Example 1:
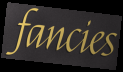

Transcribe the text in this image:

fancies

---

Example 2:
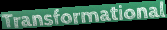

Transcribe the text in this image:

Transformational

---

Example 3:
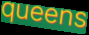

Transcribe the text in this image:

queens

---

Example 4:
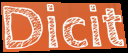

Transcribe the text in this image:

Dicit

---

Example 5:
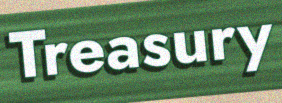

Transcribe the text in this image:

Treasury